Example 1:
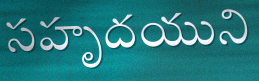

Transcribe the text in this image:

సహృదయుని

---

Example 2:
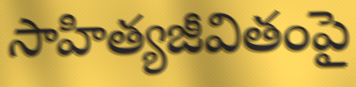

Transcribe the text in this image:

సాహిత్యజీవితంపై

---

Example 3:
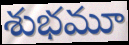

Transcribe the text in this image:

శుభమూ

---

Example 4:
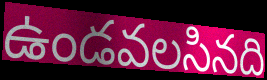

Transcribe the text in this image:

ఉండవలసినది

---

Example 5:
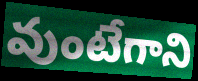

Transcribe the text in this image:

వుంటేగాని